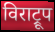
विराट्रूप